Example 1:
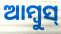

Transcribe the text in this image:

ଆମ୍ବୁସ୍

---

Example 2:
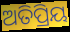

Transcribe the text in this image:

ଅତିପ୍ରିୟ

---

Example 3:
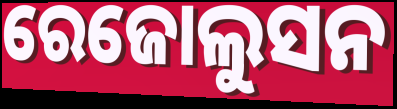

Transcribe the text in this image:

ରେଜୋଲୁସନ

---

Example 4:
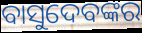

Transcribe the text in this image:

ବାସୁଦେବଙ୍କର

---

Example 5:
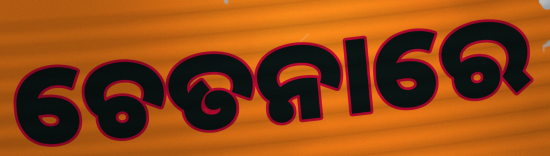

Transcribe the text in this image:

ଚେତନାରେ